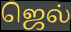
ஜெல்